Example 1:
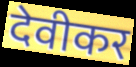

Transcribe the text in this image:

देवीकर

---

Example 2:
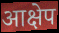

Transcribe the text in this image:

आक्षेप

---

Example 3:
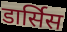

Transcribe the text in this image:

डार्सिस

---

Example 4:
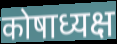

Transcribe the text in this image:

कोषाध्यक्ष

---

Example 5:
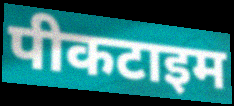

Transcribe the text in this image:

पीकटाइम